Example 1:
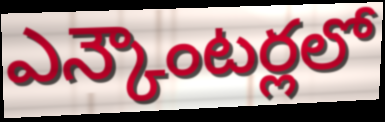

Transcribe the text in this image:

ఎన్కౌంటర్లలో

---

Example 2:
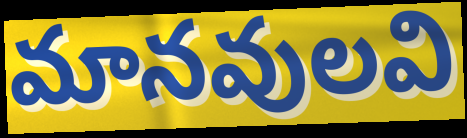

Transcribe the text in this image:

మానవులవి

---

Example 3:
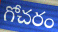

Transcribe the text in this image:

గోచరం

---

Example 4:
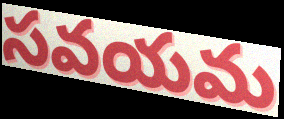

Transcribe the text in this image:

సవయమ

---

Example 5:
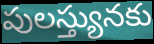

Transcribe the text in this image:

పులస్త్యునకు